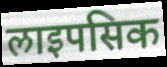
लाइपसिक